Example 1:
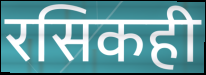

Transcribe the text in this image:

रसिकही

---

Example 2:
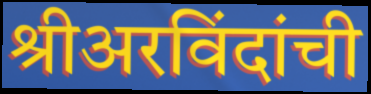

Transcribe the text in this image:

श्रीअरविंदांची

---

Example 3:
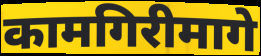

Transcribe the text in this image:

कामगिरीमागे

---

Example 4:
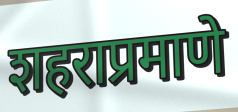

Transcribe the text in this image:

शहराप्रमाणे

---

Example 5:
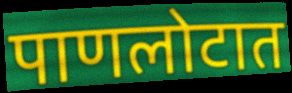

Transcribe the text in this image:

पाणलोटात